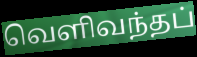
வெளிவந்தப்